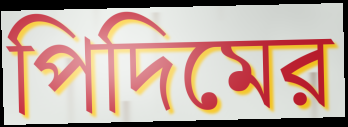
পিদিমের